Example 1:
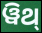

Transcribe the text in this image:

ୱିଥ୍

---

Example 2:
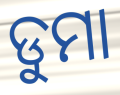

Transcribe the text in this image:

ଡୁମା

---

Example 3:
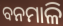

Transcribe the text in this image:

ବନମାଳି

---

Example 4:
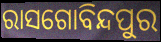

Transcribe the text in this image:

ରାସଗୋବିନ୍ଦପୁର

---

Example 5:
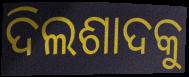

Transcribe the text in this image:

ଦିଲଶାଦକୁ